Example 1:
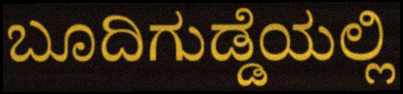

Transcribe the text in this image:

ಬೂದಿಗುಡ್ಡೆಯಲ್ಲಿ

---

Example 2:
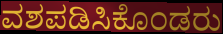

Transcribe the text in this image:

ವಶಪಡಿಸಿಕೊಂಡರು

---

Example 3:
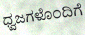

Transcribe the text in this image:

ಧ್ವಜಗಳೊಂದಿಗೆ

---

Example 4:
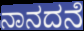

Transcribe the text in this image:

ನಾನದನೆ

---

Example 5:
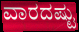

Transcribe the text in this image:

ವಾರದಷ್ಟು